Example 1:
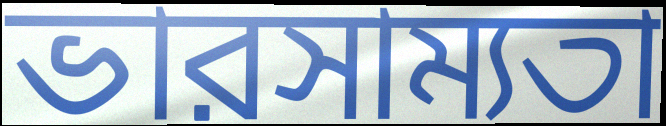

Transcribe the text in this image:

ভারসাম্যতা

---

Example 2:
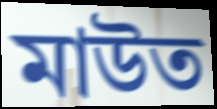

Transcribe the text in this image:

মাউত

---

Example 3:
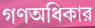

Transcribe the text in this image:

গণঅধিকার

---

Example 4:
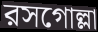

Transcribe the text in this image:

রসগোল্লা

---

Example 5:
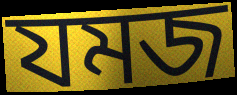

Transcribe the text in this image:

যমজ